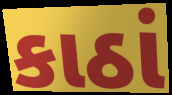
કાઠાં